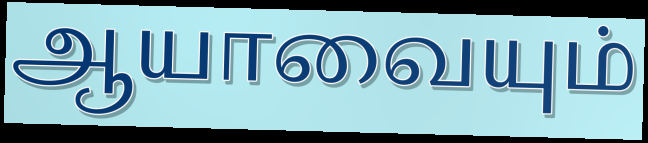
ஆயாவையும்